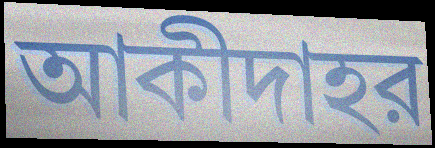
আকীদাহর